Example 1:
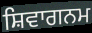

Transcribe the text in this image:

ਸ਼ਿਵਾਗਨਮ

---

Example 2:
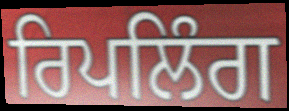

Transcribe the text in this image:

ਰਿਪਲਿੰਗ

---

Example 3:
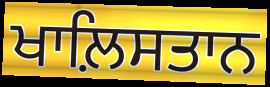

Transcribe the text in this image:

ਖਾਲ਼ਿਸਤਾਨ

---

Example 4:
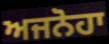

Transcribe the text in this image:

ਅਜਨੋਹਾ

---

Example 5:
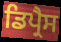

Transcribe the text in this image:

ਡਿਪ੍ਰੈਸ